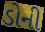
ડોની